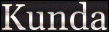
Kunda